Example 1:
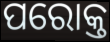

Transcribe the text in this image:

ପରୋକ୍ତ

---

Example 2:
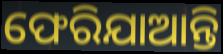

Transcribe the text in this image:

ଫେରିଯାଆନ୍ତି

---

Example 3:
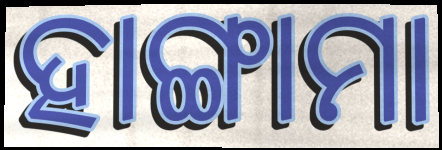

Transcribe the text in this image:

ହାଙ୍ଗାମା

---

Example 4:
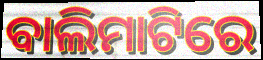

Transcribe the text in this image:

ବାଲିମାଟିରେ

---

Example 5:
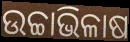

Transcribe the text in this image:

ଉଚ୍ଚାଭିଳାଷ